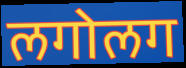
लगोलग